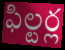
ఫిల్టర్ల